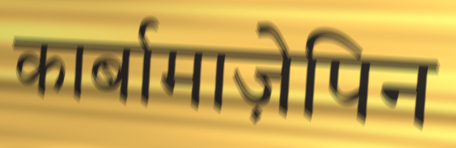
कार्बामाज़ेपिन